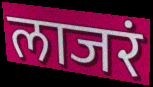
लाजरं